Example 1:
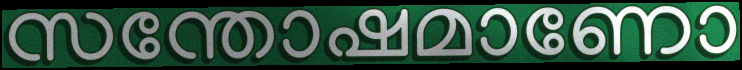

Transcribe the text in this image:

സന്തോഷമാണോ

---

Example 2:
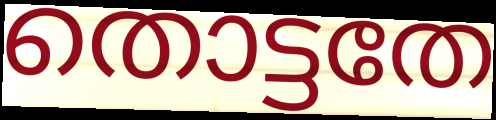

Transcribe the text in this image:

തൊട്ടതേ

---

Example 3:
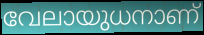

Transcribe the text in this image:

വേലായുധനാണ്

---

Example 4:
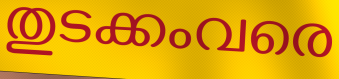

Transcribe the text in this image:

തുടക്കംവരെ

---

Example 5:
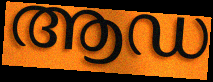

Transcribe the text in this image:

ആഡ